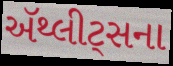
ઍથ્લીટ્સના